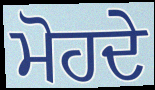
ਮੋਹਦੇ